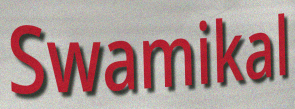
Swamikal